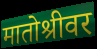
मातोश्रीवर